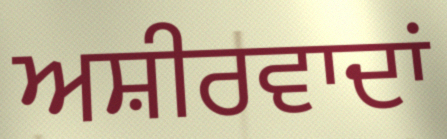
ਅਸ਼ੀਰਵਾਦਾਂ